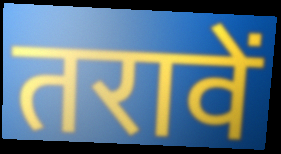
तरावें